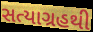
સત્યાગ્રહથી